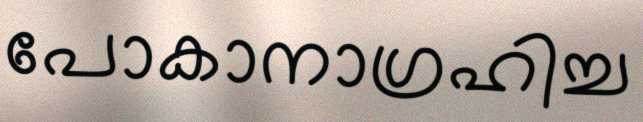
പോകാനാഗ്രഹിച്ച